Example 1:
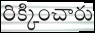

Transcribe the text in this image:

రిక్కించారు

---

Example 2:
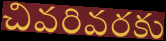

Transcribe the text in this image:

చివరివరకు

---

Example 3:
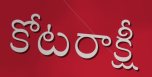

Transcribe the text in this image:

కోటరాక్షీ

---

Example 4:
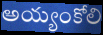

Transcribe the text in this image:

అయ్యంకోలి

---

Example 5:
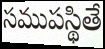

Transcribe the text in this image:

సముపస్థితే